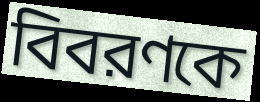
বিবরণকে